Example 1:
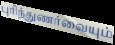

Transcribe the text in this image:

புரிந்துணர்வையும்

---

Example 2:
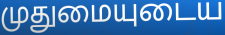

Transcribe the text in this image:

முதுமையுடைய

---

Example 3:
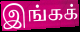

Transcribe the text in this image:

இங்கக்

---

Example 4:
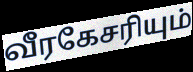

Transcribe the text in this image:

வீரகேசரியும்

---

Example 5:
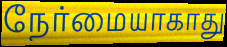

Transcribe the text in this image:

நேர்மையாகாது